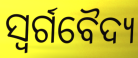
ସ୍ୱର୍ଗବୈଦ୍ୟ